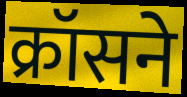
क्रॉसने